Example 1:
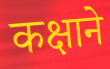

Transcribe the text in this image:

कक्षाने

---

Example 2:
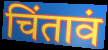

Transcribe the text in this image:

चिंतावं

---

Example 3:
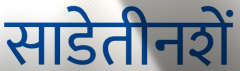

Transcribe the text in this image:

साडेतीनशें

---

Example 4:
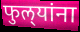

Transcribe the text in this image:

फुल्यांना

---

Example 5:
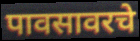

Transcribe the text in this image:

पावसावरचे